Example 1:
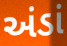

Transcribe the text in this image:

અંડાં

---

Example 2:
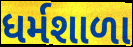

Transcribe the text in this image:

ધર્મશાળા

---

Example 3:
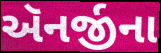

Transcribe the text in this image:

ઍનર્જીના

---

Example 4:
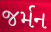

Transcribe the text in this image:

જર્મન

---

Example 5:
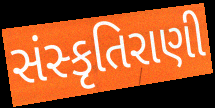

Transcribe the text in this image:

સંસ્કૃતિરાણી